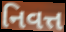
નિવત્ત